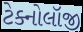
ટેક્નોલૉજી